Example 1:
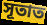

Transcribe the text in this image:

সূতাত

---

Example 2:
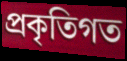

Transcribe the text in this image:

প্ৰকৃতিগত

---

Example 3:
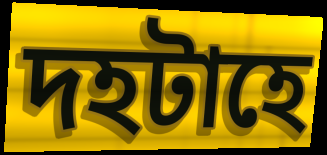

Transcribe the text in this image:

দহটাহে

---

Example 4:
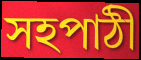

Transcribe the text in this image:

সহপাঠী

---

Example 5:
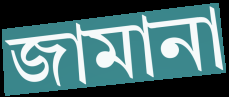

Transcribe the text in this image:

জামানা